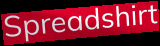
Spreadshirt